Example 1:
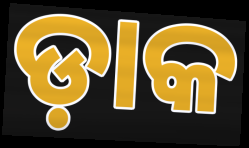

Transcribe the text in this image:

ଡ଼ାକ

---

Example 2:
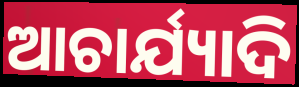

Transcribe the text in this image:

ଆଚାର୍ଯ୍ୟାଦି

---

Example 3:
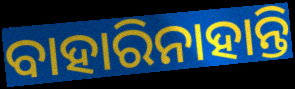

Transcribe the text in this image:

ବାହାରିନାହାନ୍ତି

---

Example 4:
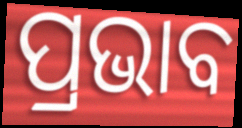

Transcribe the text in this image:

ପ୍ରଭାବ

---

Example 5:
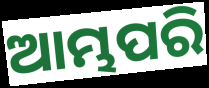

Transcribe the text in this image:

ଆମ୍ଭପରି